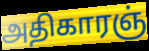
அதிகாரஞ்